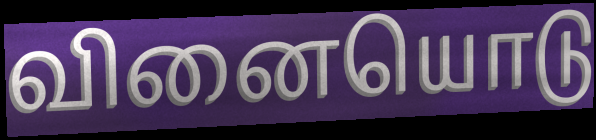
வினையொடு